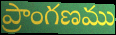
ప్రాంగణము